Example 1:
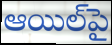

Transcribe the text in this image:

ఆయిల్‌పై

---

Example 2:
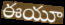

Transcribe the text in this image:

ఈయూ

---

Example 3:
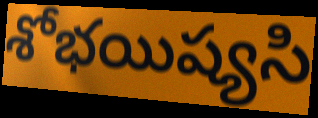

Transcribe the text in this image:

శోభయిష్యసి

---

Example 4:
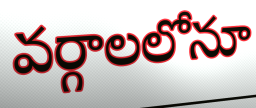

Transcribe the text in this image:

వర్గాలలోనూ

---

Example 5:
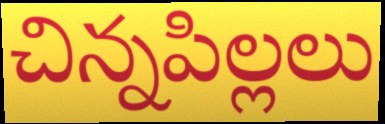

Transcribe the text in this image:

చిన్నపిల్లలు